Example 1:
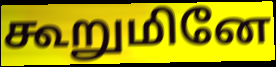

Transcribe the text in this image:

கூறுமினே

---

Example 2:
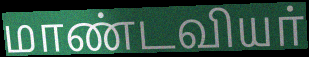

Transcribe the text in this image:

மாண்டவியர்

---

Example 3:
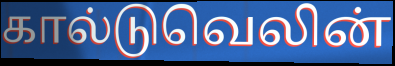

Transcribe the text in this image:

கால்டுவெலின்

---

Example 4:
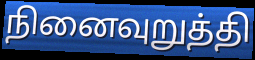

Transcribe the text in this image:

நினைவுறுத்தி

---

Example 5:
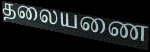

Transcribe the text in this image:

தலையணை